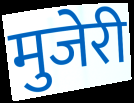
मुजेरी